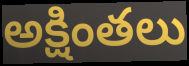
అక్షింతలు